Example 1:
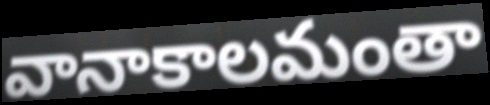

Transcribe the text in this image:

వానాకాలమంతా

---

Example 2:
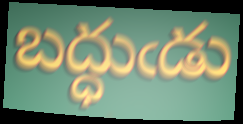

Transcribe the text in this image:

బద్ధుఁడు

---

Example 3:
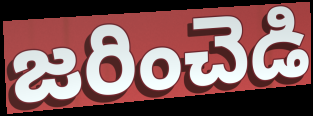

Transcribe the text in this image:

జరించెడి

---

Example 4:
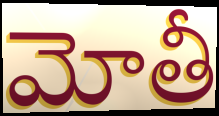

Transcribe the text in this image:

మోతీ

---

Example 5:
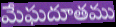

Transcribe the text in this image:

మేఘదూతము